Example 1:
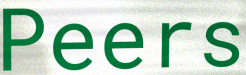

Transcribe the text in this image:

Peers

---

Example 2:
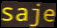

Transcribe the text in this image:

saje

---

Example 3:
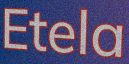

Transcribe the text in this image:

Etela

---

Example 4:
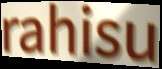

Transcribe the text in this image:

rahisu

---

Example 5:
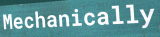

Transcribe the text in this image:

Mechanically